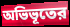
অভিভূতের